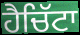
ਹੈਚਿੱਟਾ